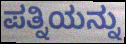
ಪತ್ನಿಯನ್ನು